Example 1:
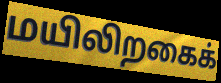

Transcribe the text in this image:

மயிலிறகைக்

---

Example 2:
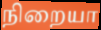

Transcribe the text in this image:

நிறையா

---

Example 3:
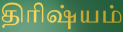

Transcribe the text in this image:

திரிஷ்யம்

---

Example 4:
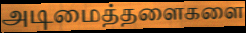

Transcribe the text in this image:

அடிமைத்தளைகளை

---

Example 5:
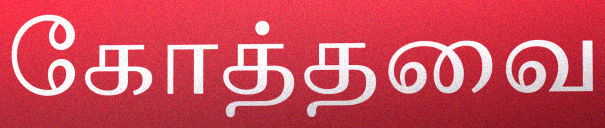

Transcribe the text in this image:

கோத்தவை